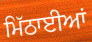
ਮਿੱਠਾਈਆਂ